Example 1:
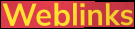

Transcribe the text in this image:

Weblinks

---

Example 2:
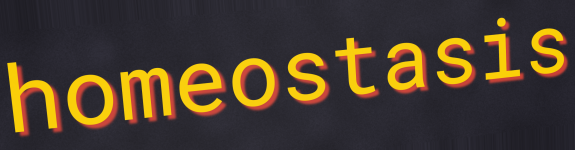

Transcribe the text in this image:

homeostasis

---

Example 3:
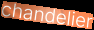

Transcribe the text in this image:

chandelier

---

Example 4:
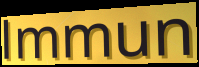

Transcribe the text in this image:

Immun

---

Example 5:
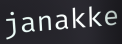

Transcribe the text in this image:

janakke